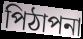
পিঠাপনা